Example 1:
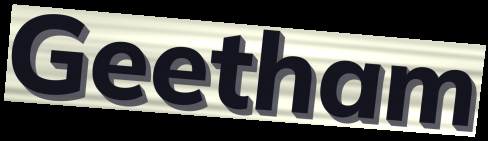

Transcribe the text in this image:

Geetham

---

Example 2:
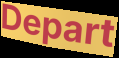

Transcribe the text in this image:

Depart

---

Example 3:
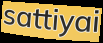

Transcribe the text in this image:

sattiyai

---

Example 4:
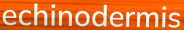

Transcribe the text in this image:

echinodermis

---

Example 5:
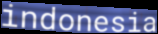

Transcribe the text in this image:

indonesia